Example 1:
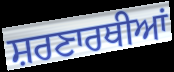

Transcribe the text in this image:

ਸ਼ਰਣਾਰਥੀਆਂ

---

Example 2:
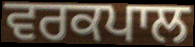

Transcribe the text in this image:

ਵਰਕਪਾਲ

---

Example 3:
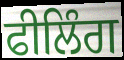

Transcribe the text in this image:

ਫੀਲਿੰਗ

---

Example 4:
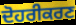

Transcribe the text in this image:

ਦੋਹਰੀਕਰਣ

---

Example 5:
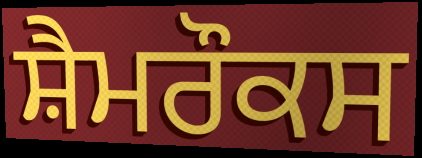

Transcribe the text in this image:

ਸ਼ੈਮਰੌਕਸ